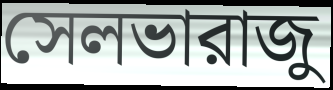
সেলভারাজু